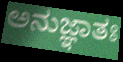
ಅನುಜ್ಞಾತಃ